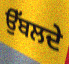
ਉੱਬਲਦੇ